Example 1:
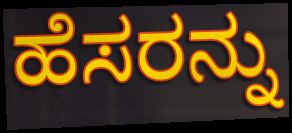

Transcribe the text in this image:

ಹೆಸರನ್ನು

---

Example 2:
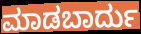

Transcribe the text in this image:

ಮಾಡಬಾರ್ದು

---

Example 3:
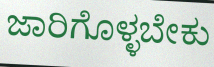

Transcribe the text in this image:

ಜಾರಿಗೊಳ್ಳಬೇಕು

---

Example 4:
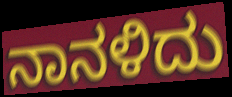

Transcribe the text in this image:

ನಾನಳಿದು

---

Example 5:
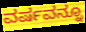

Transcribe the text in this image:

ವರ್ಷವನ್ನೂ